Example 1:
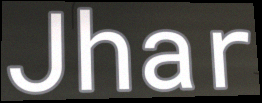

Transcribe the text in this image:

Jhar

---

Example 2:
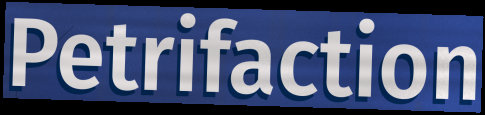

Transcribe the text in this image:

Petrifaction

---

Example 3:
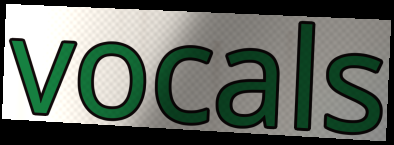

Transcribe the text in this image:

vocals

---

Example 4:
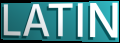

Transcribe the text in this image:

LATIN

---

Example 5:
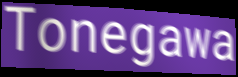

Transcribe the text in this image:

Tonegawa